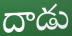
దాడు